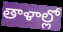
తాళాల్లో